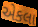
એકલા